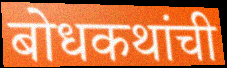
बोधकथांची